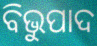
ବିଭୁପାଦ